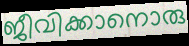
ജീവിക്കാനൊരു